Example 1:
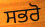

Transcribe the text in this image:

ਸਭਰੋ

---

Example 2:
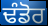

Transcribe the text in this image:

ਢੰਡੋਰ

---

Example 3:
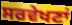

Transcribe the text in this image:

ਸਰਵੇਖਣਾਂ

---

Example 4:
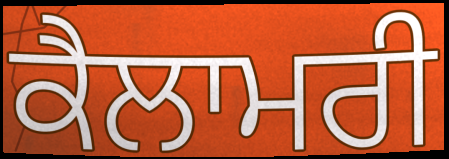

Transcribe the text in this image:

ਕੈਲਾਮਰੀ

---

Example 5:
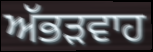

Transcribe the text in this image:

ਅੱਭੜਵਾਹ